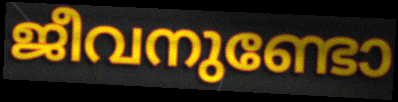
ജീവനുണ്ടോ